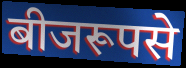
बीजरूपसे